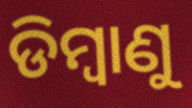
ଡିମ୍ବାଣୁ